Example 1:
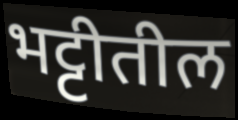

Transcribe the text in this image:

भट्टीतील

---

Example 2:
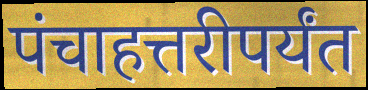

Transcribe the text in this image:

पंचाहत्तरीपर्यंत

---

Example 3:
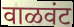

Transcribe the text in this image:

वाळवंट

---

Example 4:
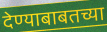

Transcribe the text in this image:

देण्याबाबतच्या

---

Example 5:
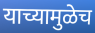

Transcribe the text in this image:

याच्यामुळेच